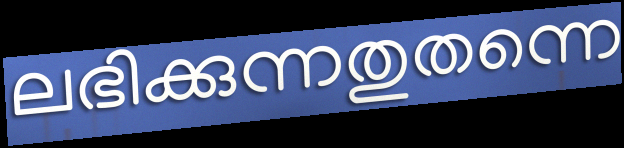
ലഭിക്കുന്നതുതന്നെ